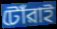
টোঁৱাই